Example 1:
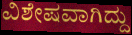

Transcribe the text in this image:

ವಿಶೇಷವಾಗಿದ್ದು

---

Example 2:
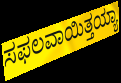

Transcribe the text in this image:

ಸಫಲವಾಯಿತ್ತಯ್ಯಾ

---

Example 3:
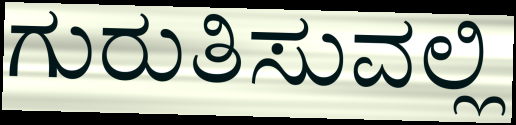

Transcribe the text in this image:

ಗುರುತಿಸುವಲ್ಲಿ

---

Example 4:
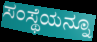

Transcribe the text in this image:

ಸಂಸ್ಥೆಯನ್ನೂ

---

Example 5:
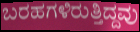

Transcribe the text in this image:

ಬರಹಗಳಿರುತ್ತಿದ್ದವು